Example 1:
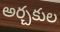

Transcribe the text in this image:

అర్చకుల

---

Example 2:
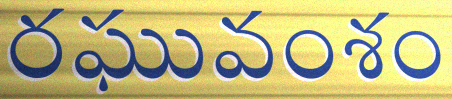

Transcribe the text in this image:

రఘువంశం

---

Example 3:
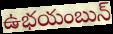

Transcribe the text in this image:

ఉభయంబున్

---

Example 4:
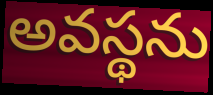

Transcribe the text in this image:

అవస్థను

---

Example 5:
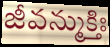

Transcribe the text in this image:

జీవన్ముక్తిః